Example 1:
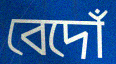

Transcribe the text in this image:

বেদোঁ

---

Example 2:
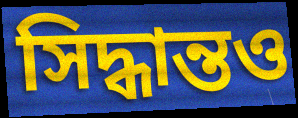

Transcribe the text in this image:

সিদ্ধান্তও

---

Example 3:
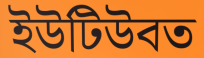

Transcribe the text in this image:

ইউটিউবত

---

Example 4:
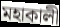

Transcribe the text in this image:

মহাকালী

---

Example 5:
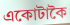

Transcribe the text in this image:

একোটাকৈ